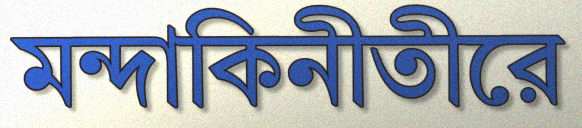
মন্দাকিনীতীরে